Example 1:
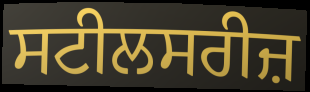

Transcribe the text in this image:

ਸਟੀਲਸਰੀਜ਼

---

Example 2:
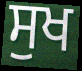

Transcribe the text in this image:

ਸੁਖ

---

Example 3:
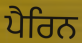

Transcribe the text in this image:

ਪੈਰਿਨ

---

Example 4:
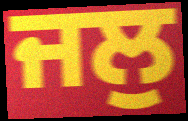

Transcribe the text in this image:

ਜਲੁ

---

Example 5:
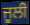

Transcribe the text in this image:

ਜੂਲੀ